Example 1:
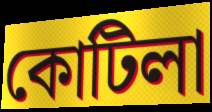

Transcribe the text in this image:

কোটিলা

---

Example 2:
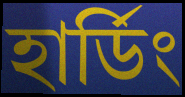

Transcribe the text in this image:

হার্ডিং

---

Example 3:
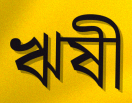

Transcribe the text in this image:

ঋষী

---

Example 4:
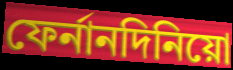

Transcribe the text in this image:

ফের্নানদিনিয়ো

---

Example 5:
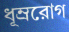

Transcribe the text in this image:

ধূম্ররোগ